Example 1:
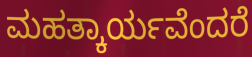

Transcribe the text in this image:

ಮಹತ್ಕಾರ್ಯವೆಂದರೆ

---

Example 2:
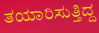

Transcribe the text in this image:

ತಯಾರಿಸುತ್ತಿದ್ದ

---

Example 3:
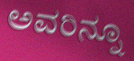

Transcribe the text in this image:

ಅವರಿನ್ನೂ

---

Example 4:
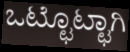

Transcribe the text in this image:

ಒಟ್ಟೊಟ್ಟಾಗಿ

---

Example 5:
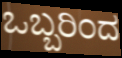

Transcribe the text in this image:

ಒಬ್ಬರಿಂದ